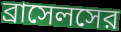
ব্রাসেলসের